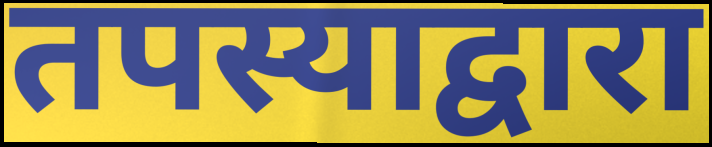
तपस्याद्वारा